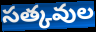
సత్కవుల